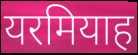
यरमियाह